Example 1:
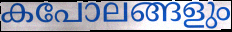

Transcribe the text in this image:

കപോലങ്ങളും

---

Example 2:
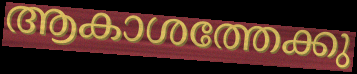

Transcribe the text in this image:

ആകാശത്തേക്കു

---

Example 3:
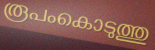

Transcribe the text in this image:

രൂപംകൊടുത്തു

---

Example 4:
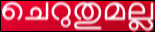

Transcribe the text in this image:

ചെറുതുമല്ല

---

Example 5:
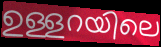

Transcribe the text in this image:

ഉള്ളറയിലെ